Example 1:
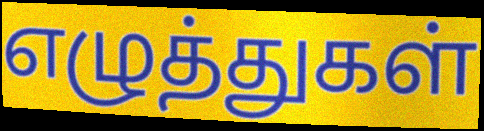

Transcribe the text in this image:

எழுத்துகள்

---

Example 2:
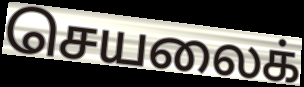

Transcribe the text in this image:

செயலைக்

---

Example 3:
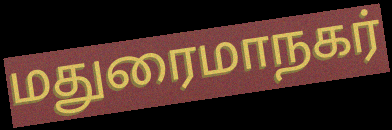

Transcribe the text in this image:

மதுரைமாநகர்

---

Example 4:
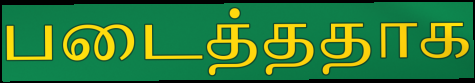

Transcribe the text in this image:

படைத்ததாக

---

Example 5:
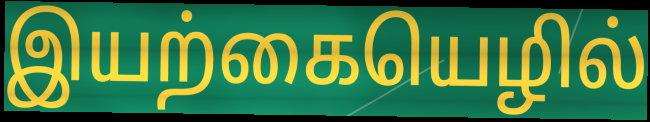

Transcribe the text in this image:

இயற்கையெழில்